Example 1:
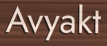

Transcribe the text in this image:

Avyakt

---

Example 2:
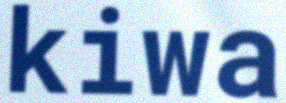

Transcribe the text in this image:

kiwa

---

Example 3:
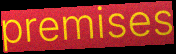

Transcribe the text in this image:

premises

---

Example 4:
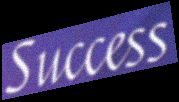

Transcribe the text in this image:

Success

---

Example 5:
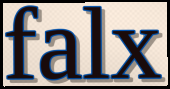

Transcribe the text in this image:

falx